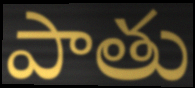
పాతు